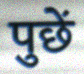
पुछें